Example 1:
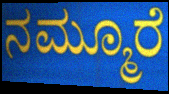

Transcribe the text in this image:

ನಮ್ಮೂರೆ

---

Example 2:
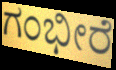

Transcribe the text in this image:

ಗಂಭೀರೆ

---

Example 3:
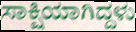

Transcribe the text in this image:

ಸಾಕ್ಷಿಯಾಗಿದ್ದಳು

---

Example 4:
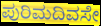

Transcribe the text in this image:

ಪುರಿಮದಿವಸೇ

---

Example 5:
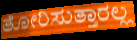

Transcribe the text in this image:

ತೋರಿಸುತ್ತಾರಲ್ಲ